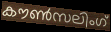
കൗൺസലിംഗ്